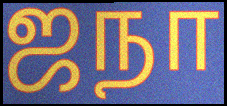
ஜநா